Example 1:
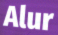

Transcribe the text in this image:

Alur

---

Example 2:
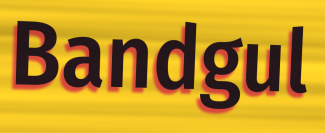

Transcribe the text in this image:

Bandgul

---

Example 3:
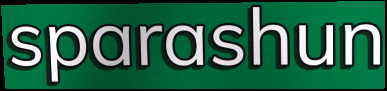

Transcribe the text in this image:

sparashun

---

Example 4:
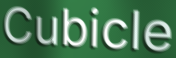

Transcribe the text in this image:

Cubicle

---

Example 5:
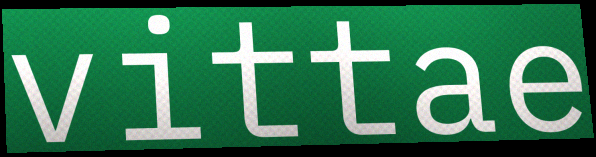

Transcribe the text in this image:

vittae